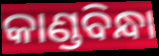
କାଣ୍ଡବିନ୍ଧା